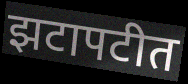
झटापटीत